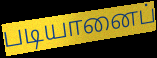
படியானைப்